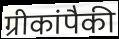
ग्रीकांपैकी